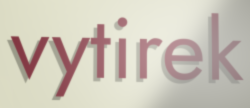
vytirek